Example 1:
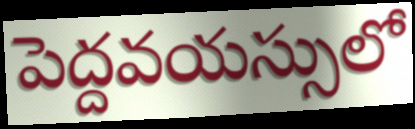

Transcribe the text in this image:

పెద్దవయస్సులో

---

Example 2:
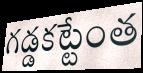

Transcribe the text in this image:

గడ్డకట్టేంత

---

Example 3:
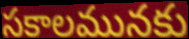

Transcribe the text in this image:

సకాలమునకు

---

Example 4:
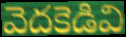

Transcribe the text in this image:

వెదకెడివి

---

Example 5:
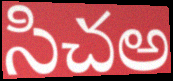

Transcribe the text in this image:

సిచఅ